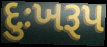
દુઃખરૂપ